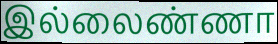
இல்லைண்ணா